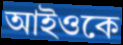
আইওকে